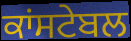
ਕਾਂਸਟੇਬਲ